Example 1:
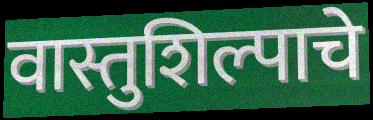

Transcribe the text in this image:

वास्तुशिल्पाचे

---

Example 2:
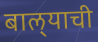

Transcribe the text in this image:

बाल्याची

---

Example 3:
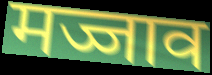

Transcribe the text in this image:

मज्जाव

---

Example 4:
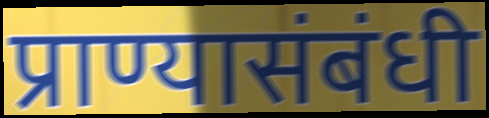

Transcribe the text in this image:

प्राण्यासंबंधी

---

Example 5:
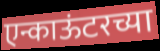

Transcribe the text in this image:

एन्काऊंटरच्या